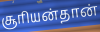
சூரியன்தான்